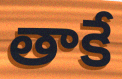
తాకే